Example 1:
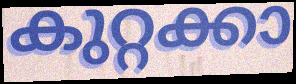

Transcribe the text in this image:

കുറ്റക്കാ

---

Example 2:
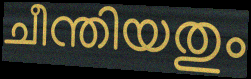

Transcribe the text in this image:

ചീന്തിയതും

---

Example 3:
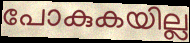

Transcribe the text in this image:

പോകുകയില്ല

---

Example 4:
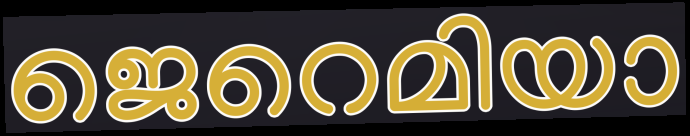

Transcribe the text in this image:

ജെറെമിയാ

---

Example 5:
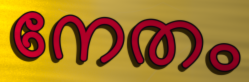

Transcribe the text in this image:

നേതം